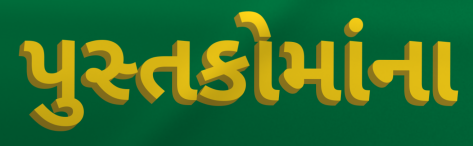
પુસ્તકોમાંના